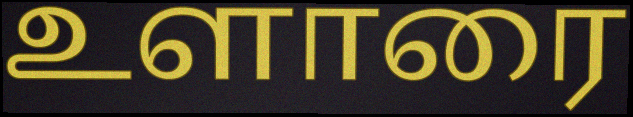
உளாரை